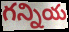
గన్నియ